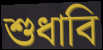
শুধাবি